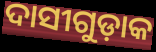
ଦାସୀଗୁଡ଼ାକ